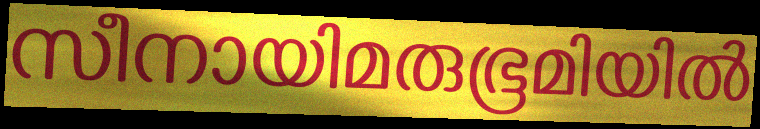
സീനായിമരുഭൂമിയിൽ